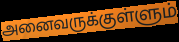
அனைவருக்குள்ளும்